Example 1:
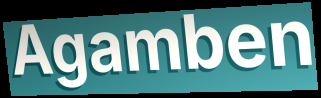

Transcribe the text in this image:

Agamben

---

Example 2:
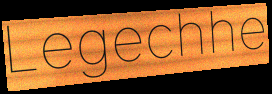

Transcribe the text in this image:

Legechhe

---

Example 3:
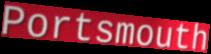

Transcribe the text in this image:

Portsmouth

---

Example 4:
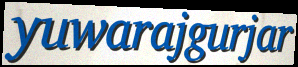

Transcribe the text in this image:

yuwarajgurjar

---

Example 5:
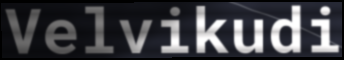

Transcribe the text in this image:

Velvikudi